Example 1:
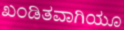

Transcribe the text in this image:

ಖಂಡಿತವಾಗಿಯೂ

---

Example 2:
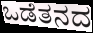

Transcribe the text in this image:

ಒಡೆತನದ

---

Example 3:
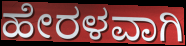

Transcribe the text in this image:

ಹೇರಳವಾಗಿ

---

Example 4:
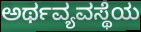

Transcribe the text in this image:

ಅರ್ಥವ್ಯವಸ್ಥೆಯ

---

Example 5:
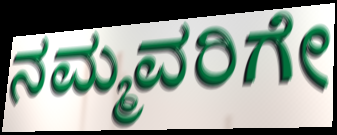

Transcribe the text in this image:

ನಮ್ಮವರಿಗೇ